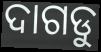
ଦାଗଡୁ